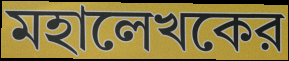
মহালেখকের